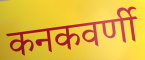
कनकवर्णी